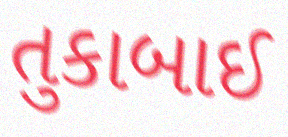
તુકાબાઈ